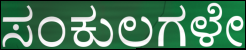
ಸಂಕುಲಗಳೇ